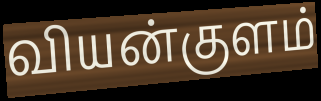
வியன்குளம்